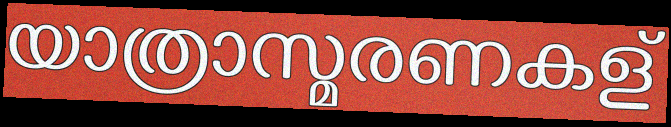
യാത്രാസ്മരണകള്